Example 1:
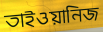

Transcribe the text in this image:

তাইওয়ানিজ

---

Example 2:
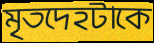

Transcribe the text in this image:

মৃতদেহটাকে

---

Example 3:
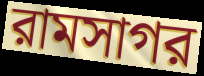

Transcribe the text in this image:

রামসাগর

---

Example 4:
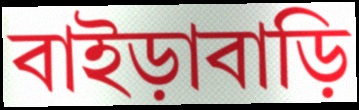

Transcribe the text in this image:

বাইড়াবাড়ি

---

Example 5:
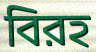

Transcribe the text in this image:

বিরহ